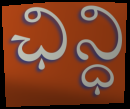
ఛిన్ధి